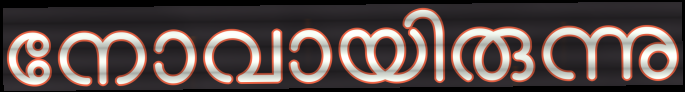
നോവായിരുന്നു